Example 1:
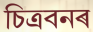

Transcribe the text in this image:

চিত্ৰবনৰ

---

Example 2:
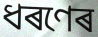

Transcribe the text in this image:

ধৰণেৰ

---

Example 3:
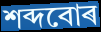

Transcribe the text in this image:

শব্দবোৰ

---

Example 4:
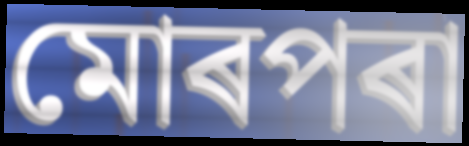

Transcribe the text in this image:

মোৰপৰা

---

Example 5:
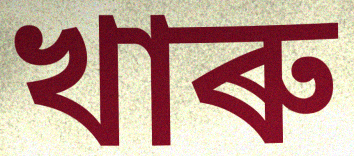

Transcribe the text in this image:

খাৰু